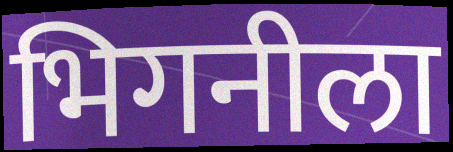
भिगनीला